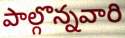
పాల్గొన్నవారి